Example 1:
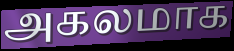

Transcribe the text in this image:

அகலமாக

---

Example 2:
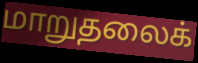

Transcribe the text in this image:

மாறுதலைக்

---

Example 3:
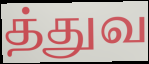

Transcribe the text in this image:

த்துவ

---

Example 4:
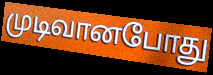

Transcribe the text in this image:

முடிவானபோது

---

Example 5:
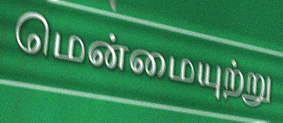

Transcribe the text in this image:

மென்மையுற்று